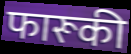
फारूकी